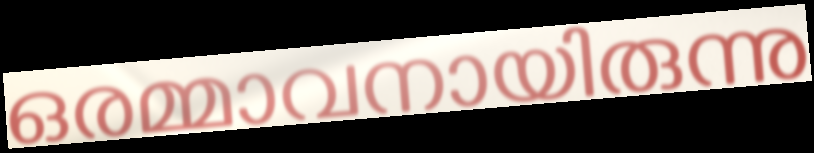
ഒരമ്മാവനായിരുന്നു